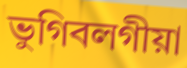
ভুগিবলগীয়া